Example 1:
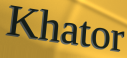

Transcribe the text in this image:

Khator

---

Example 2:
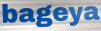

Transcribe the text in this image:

bageya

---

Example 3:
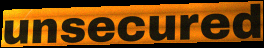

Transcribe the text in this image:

unsecured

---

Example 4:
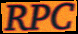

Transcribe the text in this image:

RPC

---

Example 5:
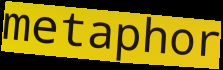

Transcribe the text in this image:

metaphor